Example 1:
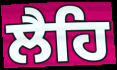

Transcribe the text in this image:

ਲੈਹਿ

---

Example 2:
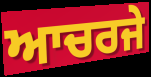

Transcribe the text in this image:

ਆਚਰਜੇ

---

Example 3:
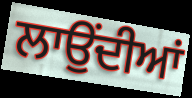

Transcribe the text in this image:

ਲਾਉਂਦੀਆਂ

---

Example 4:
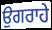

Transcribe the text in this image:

ਉਗਰਾਹੇ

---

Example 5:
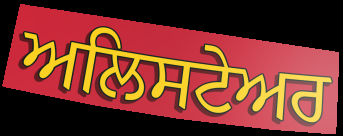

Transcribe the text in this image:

ਅਲਿਸਟੇਅਰ